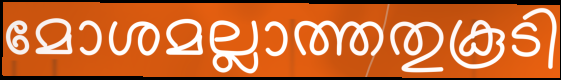
മോശമല്ലാത്തതുകൂടി